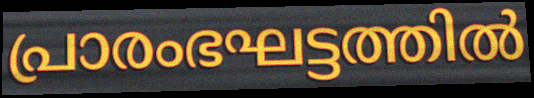
പ്രാരംഭഘട്ടത്തിൽ